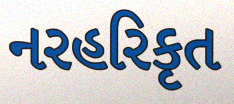
નરહરિકૃત